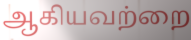
ஆகியவற்றை